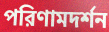
পরিণামদর্শন